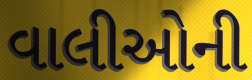
વાલીઓની